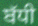
ਬੱਧੀ